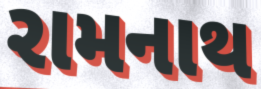
રામનાથ